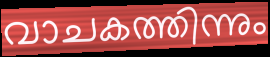
വാചകത്തിന്നും